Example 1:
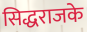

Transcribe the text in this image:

सिद्धराजके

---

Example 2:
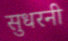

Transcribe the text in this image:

सुधरनी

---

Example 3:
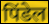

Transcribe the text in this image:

पिंडेल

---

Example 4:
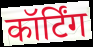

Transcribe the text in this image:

कॉर्टिंग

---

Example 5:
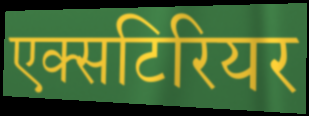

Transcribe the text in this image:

एक्सटिरियर